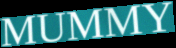
MUMMY